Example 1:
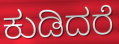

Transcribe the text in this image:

ಕುಡಿದರೆ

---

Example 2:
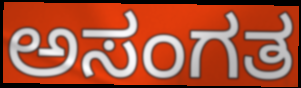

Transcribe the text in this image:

ಅಸಂಗತ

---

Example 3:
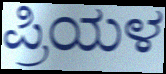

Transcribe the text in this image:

ಪ್ರಿಯಳ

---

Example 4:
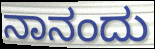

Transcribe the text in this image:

ನಾನಂದು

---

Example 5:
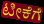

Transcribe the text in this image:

ಟೀಕೆಗೆ